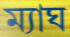
ম্যাঘ